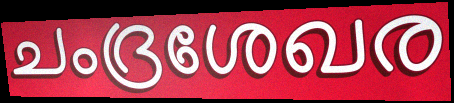
ചംദ്രശേഖര